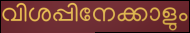
വിശപ്പിനേക്കാളും